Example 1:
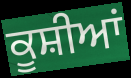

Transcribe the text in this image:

ਕੂਸ਼ੀਆਂ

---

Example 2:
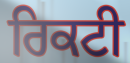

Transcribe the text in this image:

ਰਿਕਟੀ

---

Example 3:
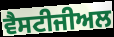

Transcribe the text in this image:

ਵੈਸਟੀਜੀਅਲ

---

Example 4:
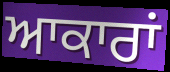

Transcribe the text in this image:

ਆਕਾਰਾਂ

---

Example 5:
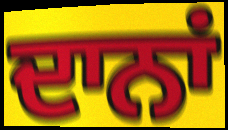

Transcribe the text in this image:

ਦਾਨਾਂ